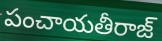
పంచాయతీరాజ్